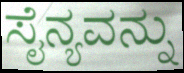
ಸೈನ್ಯವನ್ನು